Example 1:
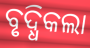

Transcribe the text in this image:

ବୃଦ୍ଧିକଲା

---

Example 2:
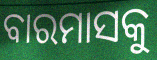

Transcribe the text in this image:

ବାରମାସକୁ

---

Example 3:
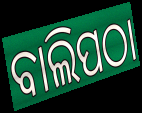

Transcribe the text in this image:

ବାଲିପଠା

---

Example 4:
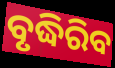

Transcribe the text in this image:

ବୃଦ୍ଧିରିବ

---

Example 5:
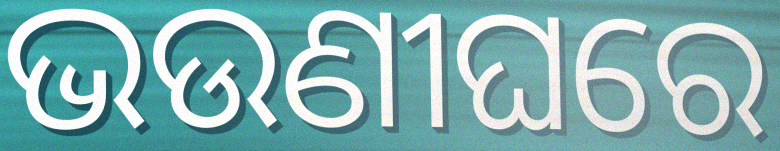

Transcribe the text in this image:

ଭଉଣୀଘରେ